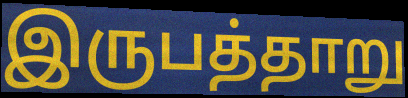
இருபத்தாறு